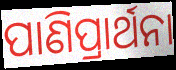
ପାଣିପ୍ରାର୍ଥନା